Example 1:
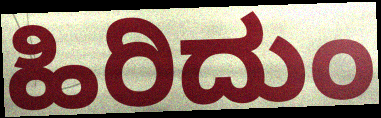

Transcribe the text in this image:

ಹಿರಿದುಂ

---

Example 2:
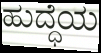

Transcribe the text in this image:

ಹುದ್ಧೆಯ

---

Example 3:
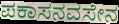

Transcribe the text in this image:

ಪಕಾಸನವಸೇನ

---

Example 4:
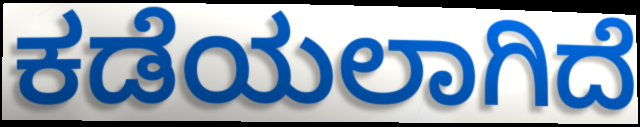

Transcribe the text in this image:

ಕಡೆಯಲಾಗಿದೆ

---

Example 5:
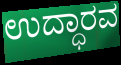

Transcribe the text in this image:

ಉದ್ಧಾರವ